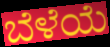
ಬೆಳೆಯೆ